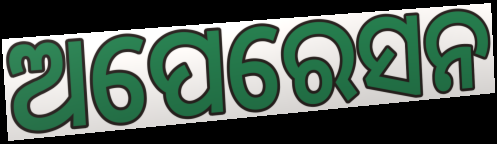
ଅପେରେସନ